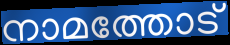
നാമത്തോട്